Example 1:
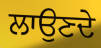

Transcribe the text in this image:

ਲਾਉਣਦੇ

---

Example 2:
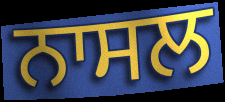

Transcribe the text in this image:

ਨਾਸਲ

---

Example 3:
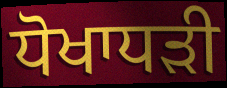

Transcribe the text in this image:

ਧੋਖਾਧਡ਼ੀ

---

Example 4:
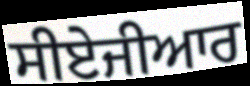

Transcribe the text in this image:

ਸੀਏਜੀਆਰ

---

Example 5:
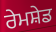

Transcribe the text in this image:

ਰੇਮਸ਼ੇਡ